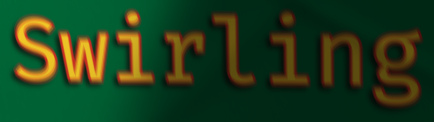
Swirling